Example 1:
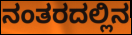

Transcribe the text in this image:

ನಂತರದಲ್ಲಿನ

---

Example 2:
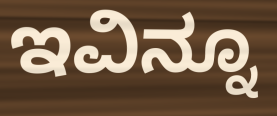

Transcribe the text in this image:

ಇವಿನ್ನೂ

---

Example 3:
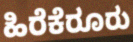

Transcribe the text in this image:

ಹಿರೆಕೆರೂರು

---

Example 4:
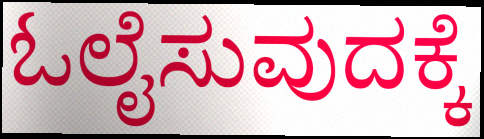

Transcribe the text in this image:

ಓಲೈಸುವುದಕ್ಕೆ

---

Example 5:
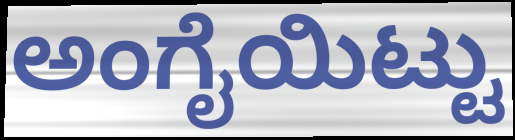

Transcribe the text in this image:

ಅಂಗೈಯಿಟ್ಟು